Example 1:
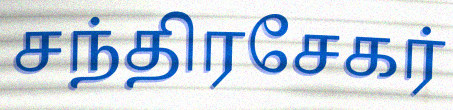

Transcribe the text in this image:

சந்திரசேகர்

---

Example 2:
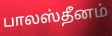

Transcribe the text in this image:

பாலஸ்தீனம்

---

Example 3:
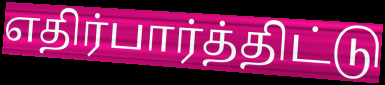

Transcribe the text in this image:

எதிர்பார்த்திட்டு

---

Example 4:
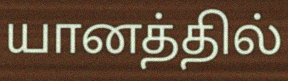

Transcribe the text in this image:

யானத்தில்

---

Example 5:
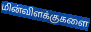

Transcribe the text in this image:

மின்விளக்குகளை